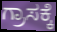
ಗ್ರಾಸಕ್ಕೆ